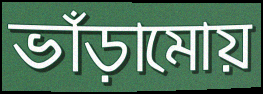
ভাঁড়ামোয়